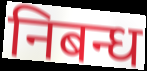
निबन्ध